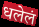
धलेलं